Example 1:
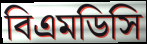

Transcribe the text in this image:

বিএমডিসি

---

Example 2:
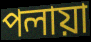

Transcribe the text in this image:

পলায়া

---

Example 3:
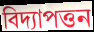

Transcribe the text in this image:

বিদ্যাপত্তন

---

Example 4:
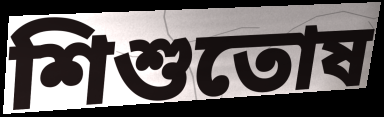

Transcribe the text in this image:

শিশুতোষ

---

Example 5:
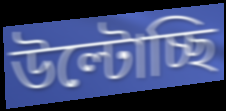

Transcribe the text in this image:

উল্টোচ্ছি